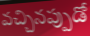
వచ్చినప్పుడో